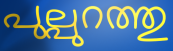
പുല്പുറത്തു